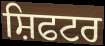
ਸ਼ਿਫਟਰ